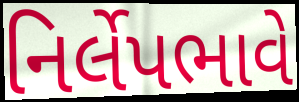
નિર્લેપભાવે